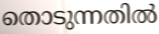
തൊടുന്നതിൽ